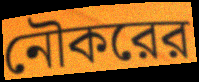
নৌকরের